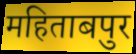
महिताबपुर